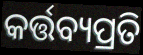
କର୍ତ୍ତବ୍ୟପ୍ରତି